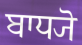
ਬਾਧ੍ਯੋ